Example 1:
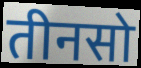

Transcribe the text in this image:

तीनसो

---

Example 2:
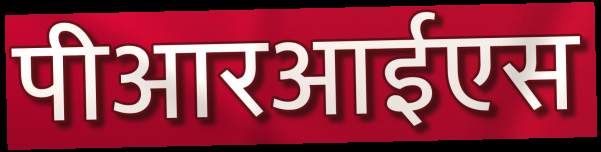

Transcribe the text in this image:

पीआरआईएस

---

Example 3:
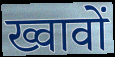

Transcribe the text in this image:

ख्वावों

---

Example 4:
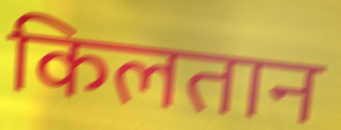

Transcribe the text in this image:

किलतान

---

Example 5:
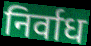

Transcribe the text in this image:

निर्वाध